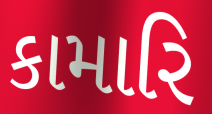
કામારિ